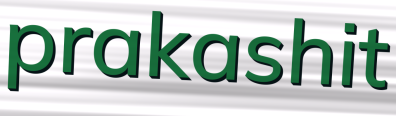
prakashit